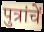
पुत्रांचें